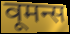
वूमन्स